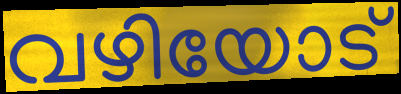
വഴിയോട്